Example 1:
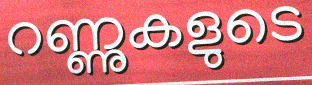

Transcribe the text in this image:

റണ്ണുകളുടെ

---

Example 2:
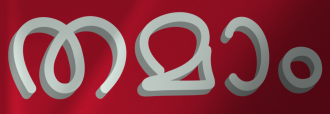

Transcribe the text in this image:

തമാം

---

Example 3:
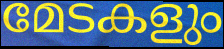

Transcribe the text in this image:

മേടകളും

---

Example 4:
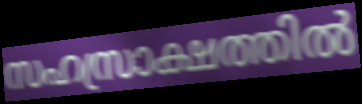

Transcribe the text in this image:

സഹസ്രാക്ഷത്തിൽ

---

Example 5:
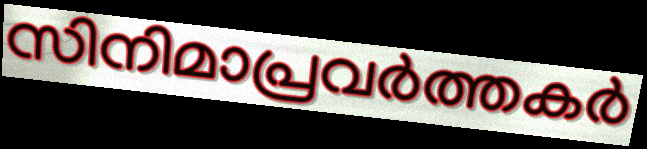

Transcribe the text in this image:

സിനിമാപ്രവർത്തകർ